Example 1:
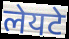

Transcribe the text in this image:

लेयटे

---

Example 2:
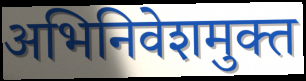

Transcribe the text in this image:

अभिनिवेशमुक्त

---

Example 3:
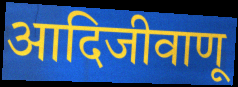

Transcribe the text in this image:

आदिजीवाणू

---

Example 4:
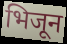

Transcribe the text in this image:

भिजून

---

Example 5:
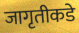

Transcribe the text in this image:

जागृतीकडे